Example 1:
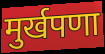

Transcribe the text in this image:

मुर्खपणा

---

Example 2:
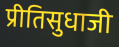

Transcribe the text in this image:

प्रीतिसुधाजी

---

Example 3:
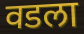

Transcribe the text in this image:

वडला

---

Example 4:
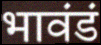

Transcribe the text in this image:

भावंडं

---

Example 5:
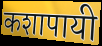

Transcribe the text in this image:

कशापायी